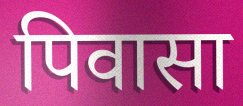
पिवासा